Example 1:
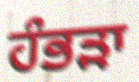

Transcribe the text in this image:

ਹੰਭੜਾ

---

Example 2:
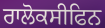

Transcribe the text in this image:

ਰਾਲੋਕਸੀਫਿਨ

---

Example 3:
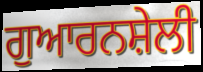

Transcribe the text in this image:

ਗੁਆਰਨਸ਼ੇਲੀ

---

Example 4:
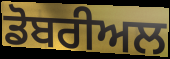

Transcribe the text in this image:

ਡੋਬਰੀਅਲ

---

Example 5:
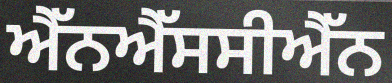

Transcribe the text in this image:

ਐੱਨਐੱਸਸੀਐੱਨ